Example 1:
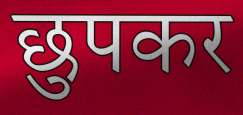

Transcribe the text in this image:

छुपकर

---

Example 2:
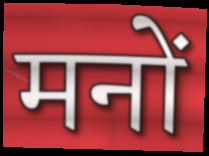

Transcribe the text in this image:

मनों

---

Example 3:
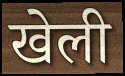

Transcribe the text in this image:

खेली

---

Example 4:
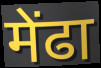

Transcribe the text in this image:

मेंढा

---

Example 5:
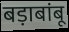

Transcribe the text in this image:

बड़ाबांबू